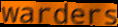
warders